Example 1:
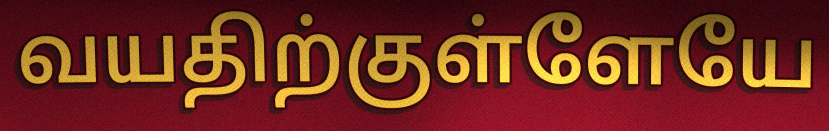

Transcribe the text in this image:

வயதிற்குள்ளேயே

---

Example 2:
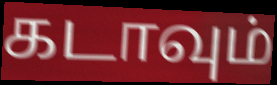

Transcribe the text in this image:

கடாவும்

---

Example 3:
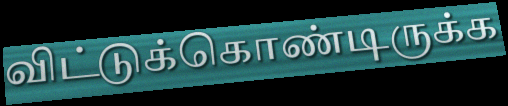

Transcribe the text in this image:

விட்டுக்கொண்டிருக்க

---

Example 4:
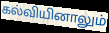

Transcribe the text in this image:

கல்வியினாலும்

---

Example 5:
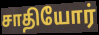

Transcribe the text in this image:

சாதியோர்